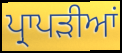
ਪ੍ਰਾਪੜੀਆਂ